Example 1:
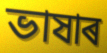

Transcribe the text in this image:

ভাষাৰ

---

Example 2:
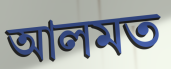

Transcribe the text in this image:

আলমত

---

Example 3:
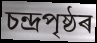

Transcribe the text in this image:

চন্দ্ৰপৃষ্ঠৰ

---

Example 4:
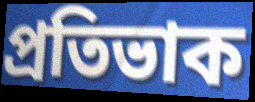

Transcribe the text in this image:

প্ৰতিভাক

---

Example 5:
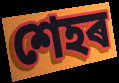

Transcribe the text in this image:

শেহৰ